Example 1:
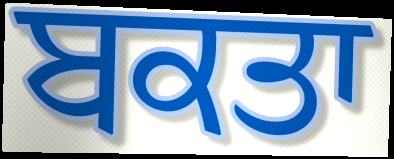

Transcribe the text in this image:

ਬਕਤਾ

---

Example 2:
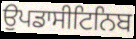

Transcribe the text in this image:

ਉਪਡਾਸੀਟਿਨਿਬ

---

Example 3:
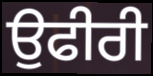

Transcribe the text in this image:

ਉਫੀਰੀ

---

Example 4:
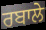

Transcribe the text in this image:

ਰਬਾਲੇ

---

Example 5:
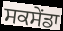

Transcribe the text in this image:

ਸਕਸੇਂਡਾ